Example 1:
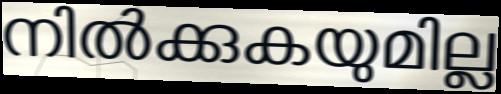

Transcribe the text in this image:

നിൽക്കുകയുമില്ല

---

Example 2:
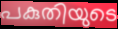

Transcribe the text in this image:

പകുതിയുടെ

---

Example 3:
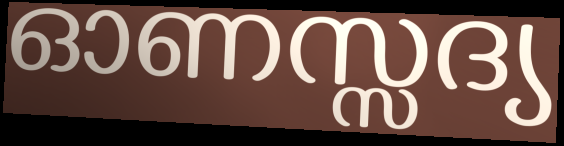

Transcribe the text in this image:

ഓണസ്സദ്യ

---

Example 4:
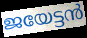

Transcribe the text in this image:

ജയേട്ടൻ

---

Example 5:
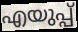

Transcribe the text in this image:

എയുപ്പ്